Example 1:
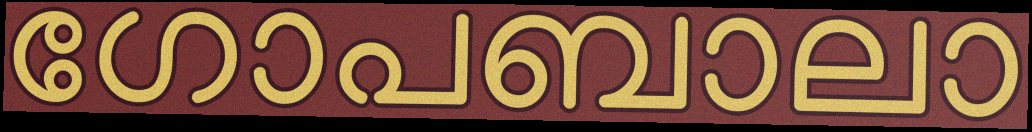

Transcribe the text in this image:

ഗോപബാലാ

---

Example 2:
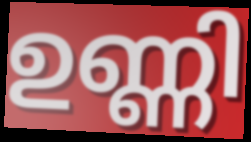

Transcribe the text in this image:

ഉണ്ണി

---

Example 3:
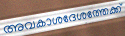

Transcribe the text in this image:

അവകാശദേശത്തേക്ക്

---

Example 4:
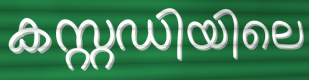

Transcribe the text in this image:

കസ്റ്റഡിയിലെ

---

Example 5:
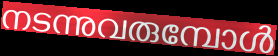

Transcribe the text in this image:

നടന്നുവരുമ്പോൾ